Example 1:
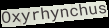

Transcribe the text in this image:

Oxyrhynchus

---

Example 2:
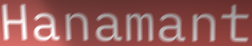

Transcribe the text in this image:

Hanamant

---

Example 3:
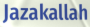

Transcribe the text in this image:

Jazakallah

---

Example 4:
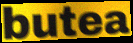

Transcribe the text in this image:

butea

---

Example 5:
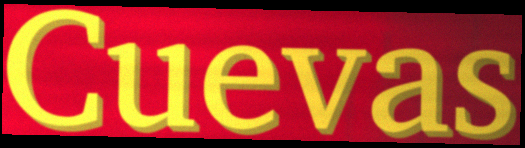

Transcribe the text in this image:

Cuevas